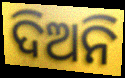
ଦିଅନି